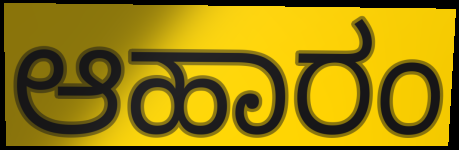
ಆಹಾರಂ